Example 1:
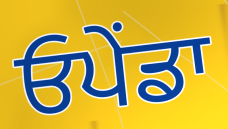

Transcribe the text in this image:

ਓਪੇਂਡਾ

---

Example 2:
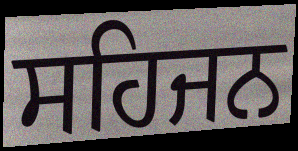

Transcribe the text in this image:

ਸਹਿਜਨ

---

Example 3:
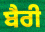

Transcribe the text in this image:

ਬੈਰੀ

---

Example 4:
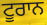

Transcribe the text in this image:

ਟੂਰਾਨ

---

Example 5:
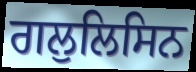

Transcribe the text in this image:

ਗਲੁਲਿਸਿਨ